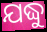
ଯଦ୍ଧୁ